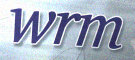
wrm